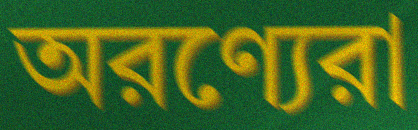
অরণ্যেরা